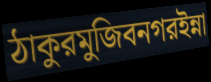
ঠাকুরমুজিবনগরইন্না